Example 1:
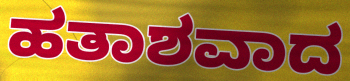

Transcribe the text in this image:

ಹತಾಶವಾದ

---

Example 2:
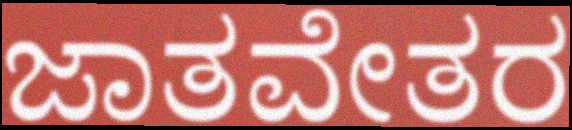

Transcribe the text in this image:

ಜಾತವೇತರ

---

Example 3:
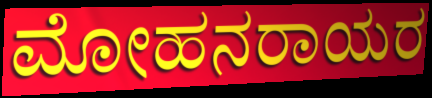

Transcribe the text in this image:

ಮೋಹನರಾಯರ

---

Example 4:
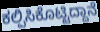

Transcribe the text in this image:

ಕಲ್ಪಿಸಿಕೊಟ್ಟಿದ್ದಾನೆ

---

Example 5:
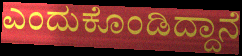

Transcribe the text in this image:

ಎಂದುಕೊಂಡಿದ್ದಾನೆ